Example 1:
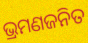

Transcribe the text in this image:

ଭ୍ରମଣଜନିତ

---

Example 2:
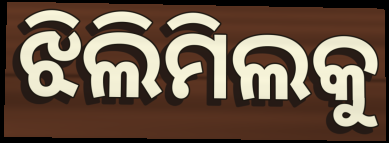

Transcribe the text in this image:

ଝିଲିମିଲକୁ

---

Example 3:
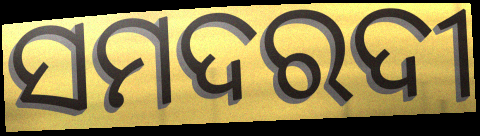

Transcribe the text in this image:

ସମଦରଦୀ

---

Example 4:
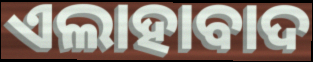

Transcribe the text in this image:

ଏଲାହାବାଦ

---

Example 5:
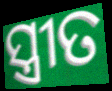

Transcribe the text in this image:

ସ୍ତ୍ରୀତ